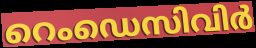
റെംഡെസിവിർ